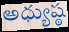
అధ్యుష్ఠ